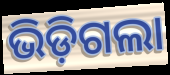
ଭିଡ଼ିଗଲା